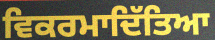
ਵਿਕਰਮਾਦਿੱਤਿਆ